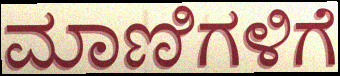
ಮಾಣಿಗಳಿಗೆ